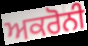
ਅਕਰੋਨੀ